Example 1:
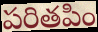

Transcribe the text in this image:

పరితపిం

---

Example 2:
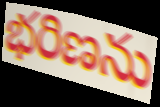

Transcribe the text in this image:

భరిణను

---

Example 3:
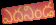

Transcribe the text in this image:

ఎదనిండ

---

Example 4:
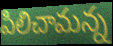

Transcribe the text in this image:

పిలిచామన్న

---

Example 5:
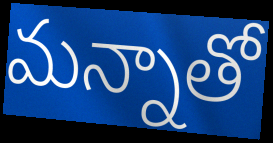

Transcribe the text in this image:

మన్నాతో